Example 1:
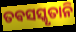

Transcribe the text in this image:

ତଵସସ୍କୃତାନି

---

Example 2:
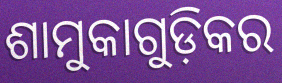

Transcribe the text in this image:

ଶାମୁକାଗୁଡ଼ିକର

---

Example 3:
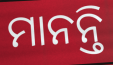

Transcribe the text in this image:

ମାନନ୍ତି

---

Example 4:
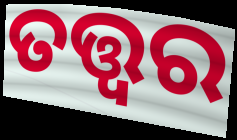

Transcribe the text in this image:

ତତ୍ତ୍ଵର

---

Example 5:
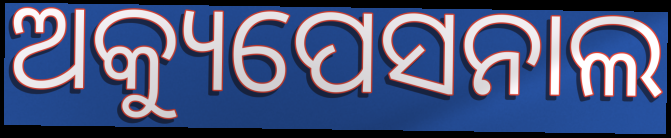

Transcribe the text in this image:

ଅକ୍ୟୁପେସନାଲ